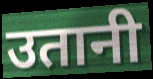
उतानी